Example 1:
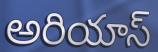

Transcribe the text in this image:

అరియాస్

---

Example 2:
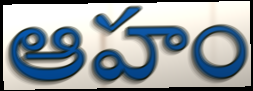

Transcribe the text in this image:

ఆహం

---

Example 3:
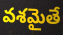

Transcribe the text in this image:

వశమైతే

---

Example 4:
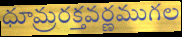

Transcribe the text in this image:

ధూమ్రరక్తవర్ణముగల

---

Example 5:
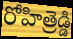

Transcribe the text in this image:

రోహిత్రెడ్డి